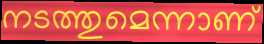
നടത്തുമെന്നാണ്